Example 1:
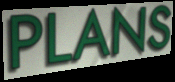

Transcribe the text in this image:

PLANS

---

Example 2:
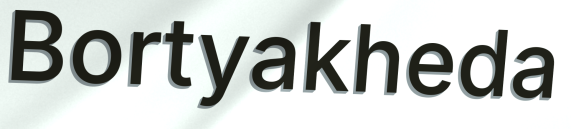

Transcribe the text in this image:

Bortyakheda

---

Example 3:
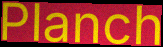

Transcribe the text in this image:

Planch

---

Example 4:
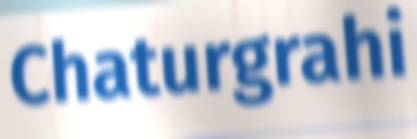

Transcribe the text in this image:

Chaturgrahi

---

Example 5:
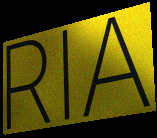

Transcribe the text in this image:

RIA